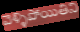
వెళ్ళిపోయితిని